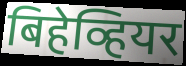
बिहेव्हियर